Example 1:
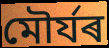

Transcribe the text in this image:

মৌৰ্যৰ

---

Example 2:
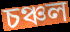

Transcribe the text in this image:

চঞ্চল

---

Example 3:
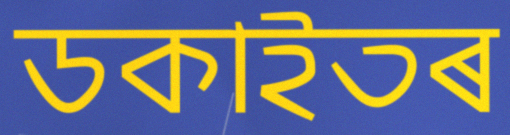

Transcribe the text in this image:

ডকাইতৰ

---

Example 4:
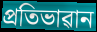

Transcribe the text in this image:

প্ৰতিভাৱান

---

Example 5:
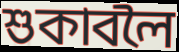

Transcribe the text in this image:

শুকাবলৈ